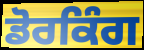
ਡੋਰਕਿੰਗ